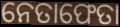
ନେତାଫେତା